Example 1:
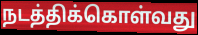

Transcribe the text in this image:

நடத்திக்கொள்வது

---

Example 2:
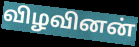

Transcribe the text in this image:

விழவினன்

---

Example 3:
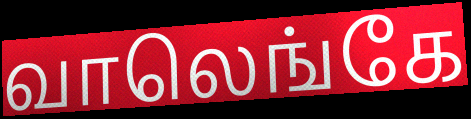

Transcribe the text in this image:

வாலெங்கே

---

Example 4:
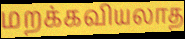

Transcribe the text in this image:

மறக்கவியலாத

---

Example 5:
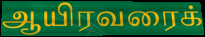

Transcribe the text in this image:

ஆயிரவரைக்